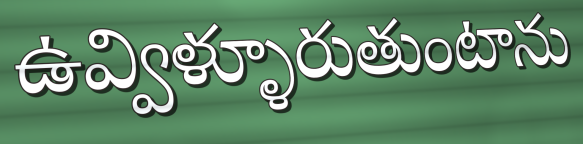
ఉవ్విళ్ళూరుతుంటాను